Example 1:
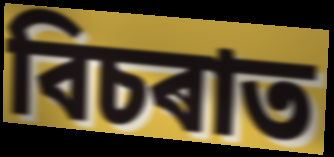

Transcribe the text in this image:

বিচৰাত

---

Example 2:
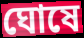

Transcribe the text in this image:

ঘোষে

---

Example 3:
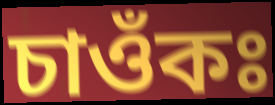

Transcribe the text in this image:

চাওঁকঃ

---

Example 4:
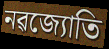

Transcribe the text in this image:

নৱজ্যোতি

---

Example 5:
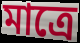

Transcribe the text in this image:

মাত্ৰে